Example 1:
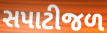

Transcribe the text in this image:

સપાટીજળ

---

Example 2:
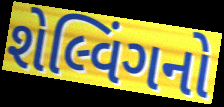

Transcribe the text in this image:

શેલ્વિંગનો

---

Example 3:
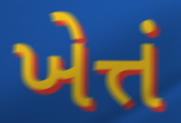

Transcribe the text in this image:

ખેત્તં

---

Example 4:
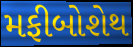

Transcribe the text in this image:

મફીબોશેથ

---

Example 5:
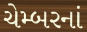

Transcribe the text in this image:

ચેમ્બરનાં